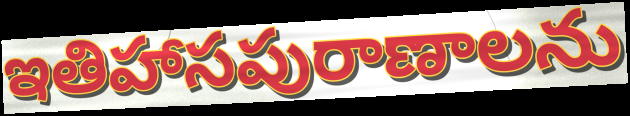
ఇతిహాసపురాణాలను